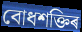
বোধশক্তিৰ